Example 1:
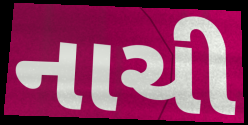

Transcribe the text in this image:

નાચી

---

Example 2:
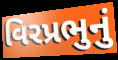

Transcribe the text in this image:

વિરપ્રભુનું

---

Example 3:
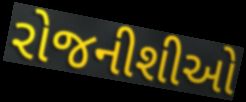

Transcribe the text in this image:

રોજનીશીઓ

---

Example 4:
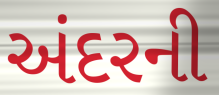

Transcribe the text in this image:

અંદરની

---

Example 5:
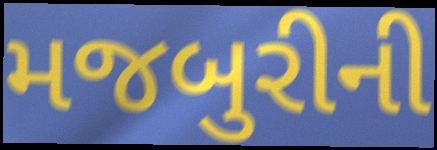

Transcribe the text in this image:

મજબુરીની